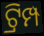
ଟ୍ରିମ୍ପ